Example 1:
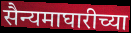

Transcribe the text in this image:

सैन्यमाघारीच्या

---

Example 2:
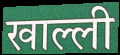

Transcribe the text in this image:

खाल्ली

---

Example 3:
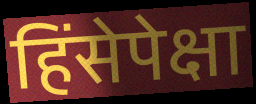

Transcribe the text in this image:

हिंसेपेक्षा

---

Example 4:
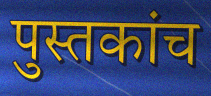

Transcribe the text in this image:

पुस्तकांच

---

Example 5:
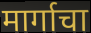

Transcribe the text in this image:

मार्गाचा